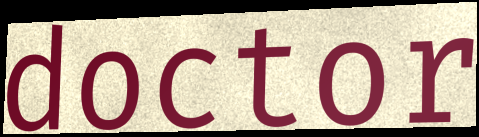
doctor